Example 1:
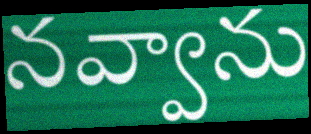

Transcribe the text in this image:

నవ్వాను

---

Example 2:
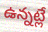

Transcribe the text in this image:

ఉన్నట్లే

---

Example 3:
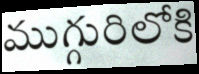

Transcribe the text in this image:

ముగ్గురిలోకి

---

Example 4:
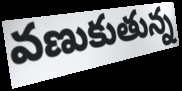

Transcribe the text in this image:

వణుకుతున్న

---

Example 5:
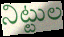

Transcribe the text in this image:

నిట్టుల